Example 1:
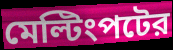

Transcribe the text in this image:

মেল্টিংপটের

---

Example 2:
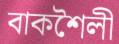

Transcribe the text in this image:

বাকশৈলী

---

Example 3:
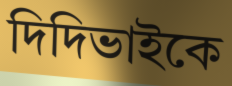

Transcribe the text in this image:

দিদিভাইকে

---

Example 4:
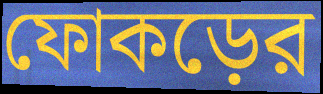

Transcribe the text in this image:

ফোকড়ের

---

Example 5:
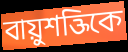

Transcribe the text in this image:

বায়ুশক্তিকে